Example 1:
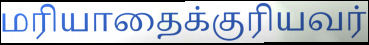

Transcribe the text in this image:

மரியாதைக்குரியவர்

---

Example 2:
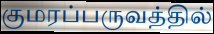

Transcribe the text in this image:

குமரப்பருவத்தில்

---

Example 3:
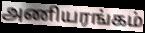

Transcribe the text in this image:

அணியரங்கம்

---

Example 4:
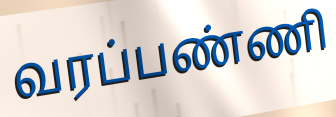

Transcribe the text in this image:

வரப்பண்ணி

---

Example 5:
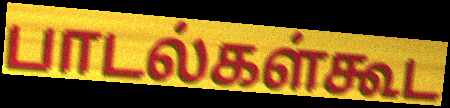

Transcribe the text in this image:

பாடல்கள்கூட